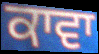
ਕਾਵਾ